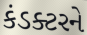
કંડક્ટરને